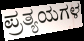
ಪ್ರತ್ಯಯಗಳ